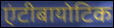
एंटीबायोटिक